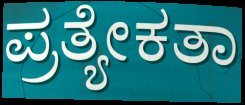
ಪ್ರತ್ಯೇಕತಾ